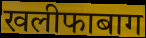
खलीफाबाग